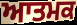
ਆਤਮਕ